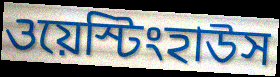
ওয়েস্টিংহাউস